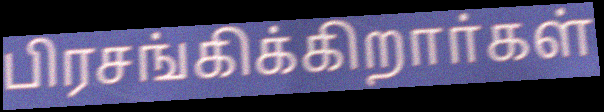
பிரசங்கிக்கிறார்கள்